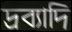
দ্রব্যাদি